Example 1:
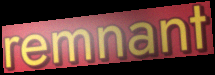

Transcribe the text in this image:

remnant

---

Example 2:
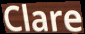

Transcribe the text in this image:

Clare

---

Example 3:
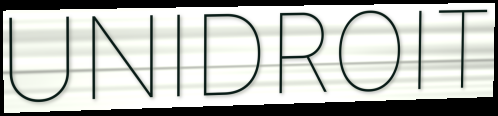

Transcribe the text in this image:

UNIDROIT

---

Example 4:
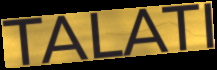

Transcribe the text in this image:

TALATI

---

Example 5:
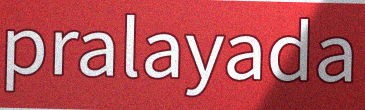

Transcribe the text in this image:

pralayada